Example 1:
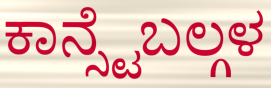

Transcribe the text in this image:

ಕಾನ್ಸ್ಟೆಬಲ್ಗಳ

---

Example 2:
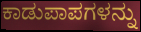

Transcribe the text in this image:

ಕಾಡುಪಾಪಗಳನ್ನು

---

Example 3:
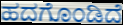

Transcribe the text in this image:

ಹದಗೊಂಡಿದೆ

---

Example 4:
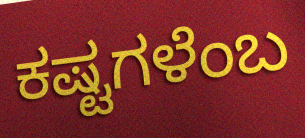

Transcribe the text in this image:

ಕಷ್ಟಗಳೆಂಬ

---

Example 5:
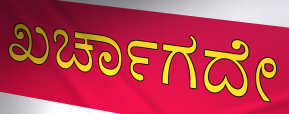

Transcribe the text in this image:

ಖರ್ಚಾಗದೇ